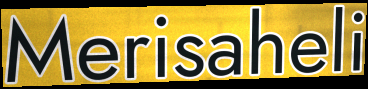
Merisaheli